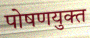
पोषणयुक्त